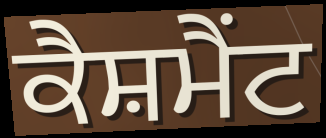
ਕੈਸ਼ਮੈਂਟ